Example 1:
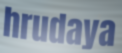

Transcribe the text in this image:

hrudaya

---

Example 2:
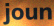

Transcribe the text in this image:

joun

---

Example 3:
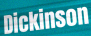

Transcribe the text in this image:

Dickinson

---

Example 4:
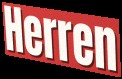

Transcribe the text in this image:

Herren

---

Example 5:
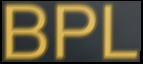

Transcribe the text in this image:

BPL